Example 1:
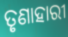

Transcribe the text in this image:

ତୃଣାହାରୀ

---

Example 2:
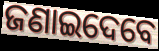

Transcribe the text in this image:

ଜଣାଇଦେବେ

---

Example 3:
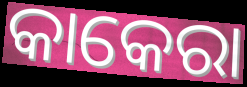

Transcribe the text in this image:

କାକେରା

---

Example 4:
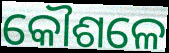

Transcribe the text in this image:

କୌଶଳେ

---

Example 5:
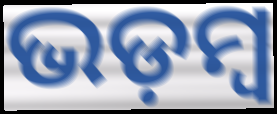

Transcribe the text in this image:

ଭଡ଼ମ୍ବ